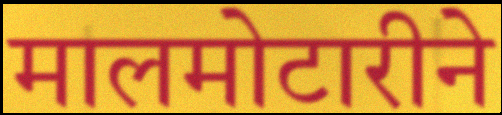
मालमोटारीने